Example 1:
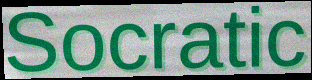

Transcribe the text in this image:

Socratic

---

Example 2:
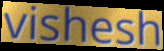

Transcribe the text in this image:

vishesh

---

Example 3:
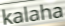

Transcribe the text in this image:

kalaha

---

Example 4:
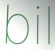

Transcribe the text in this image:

bil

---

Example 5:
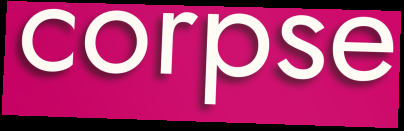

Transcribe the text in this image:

corpse